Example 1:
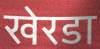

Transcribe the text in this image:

खेरडा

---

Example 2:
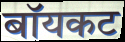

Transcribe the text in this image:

बॉयकट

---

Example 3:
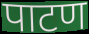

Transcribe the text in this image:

पाटण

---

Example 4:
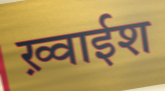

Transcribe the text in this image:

ख़्वाईश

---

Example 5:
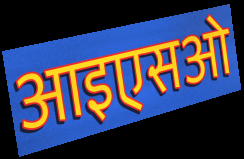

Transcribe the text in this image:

आइएसओ